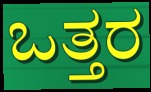
ಒತ್ತರ